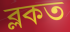
ব্লকত